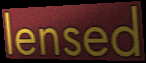
lensed